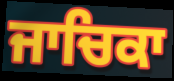
ਜਾਚਿਕਾ